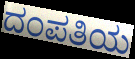
ದಂಪತಿಯ